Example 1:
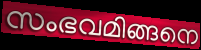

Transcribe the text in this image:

സംഭവമിങ്ങനെ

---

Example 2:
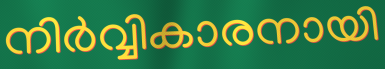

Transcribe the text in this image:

നിർവ്വികാരനായി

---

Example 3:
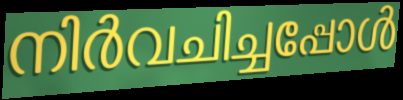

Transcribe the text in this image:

നിർവചിച്ചപ്പോൾ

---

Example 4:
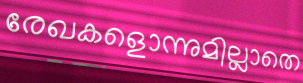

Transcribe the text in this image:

രേഖകളൊന്നുമില്ലാതെ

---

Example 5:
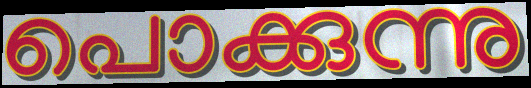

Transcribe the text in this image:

പൊക്കുന്നു